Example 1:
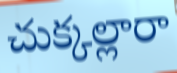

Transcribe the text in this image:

చుక్కల్లారా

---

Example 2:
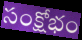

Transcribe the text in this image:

సంక్షోభం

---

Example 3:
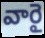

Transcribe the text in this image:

వారై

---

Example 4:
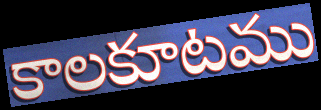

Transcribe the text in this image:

కాలకూటము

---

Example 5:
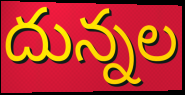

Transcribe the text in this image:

దున్నల